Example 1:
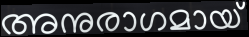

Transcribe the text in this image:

അനുരാഗമായ്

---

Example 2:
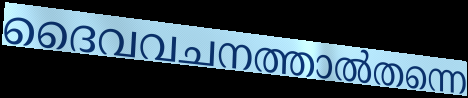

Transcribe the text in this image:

ദൈവവചനത്താൽതന്നെ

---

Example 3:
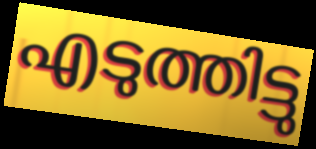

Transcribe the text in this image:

എടുത്തിട്ടു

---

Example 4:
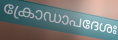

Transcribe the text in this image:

ക്രോഡാപദേശഃ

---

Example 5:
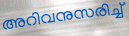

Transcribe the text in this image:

അറിവനുസരിച്ച്